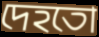
দেহতো